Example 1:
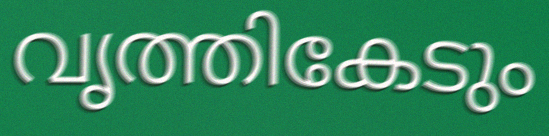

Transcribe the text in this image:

വൃത്തികേടും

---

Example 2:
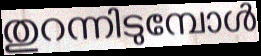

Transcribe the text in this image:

തുറന്നിടുമ്പോൾ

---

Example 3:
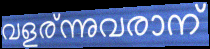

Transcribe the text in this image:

വളര്ന്നുവരാന്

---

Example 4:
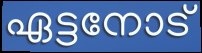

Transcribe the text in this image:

ഏട്ടനോട്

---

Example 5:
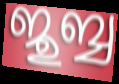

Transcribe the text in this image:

ജുബ്ബ